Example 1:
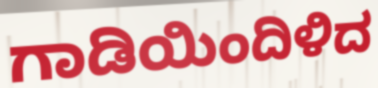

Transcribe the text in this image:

ಗಾಡಿಯಿಂದಿಳಿದ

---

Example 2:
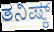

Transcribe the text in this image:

ತನಿಷ್ಕ್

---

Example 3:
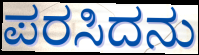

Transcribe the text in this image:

ಪರಸಿದನು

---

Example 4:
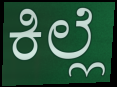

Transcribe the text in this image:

ಕಿಲ್ಲೆ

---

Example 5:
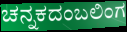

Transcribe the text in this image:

ಚನ್ನಕದಂಬಲಿಂಗ